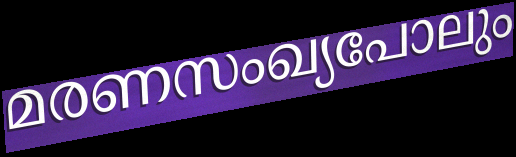
മരണസംഖ്യപോലും